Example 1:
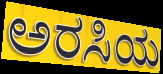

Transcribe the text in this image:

ಅರಸಿಯ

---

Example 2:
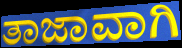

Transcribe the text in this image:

ತಾಜಾವಾಗಿ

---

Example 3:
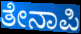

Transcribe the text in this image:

ತೇನಾಪಿ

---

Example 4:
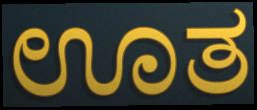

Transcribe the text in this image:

ಊತ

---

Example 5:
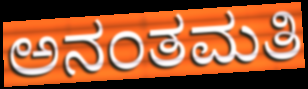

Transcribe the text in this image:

ಅನಂತಮತಿ